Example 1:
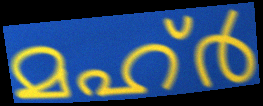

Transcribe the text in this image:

മഹ്ർ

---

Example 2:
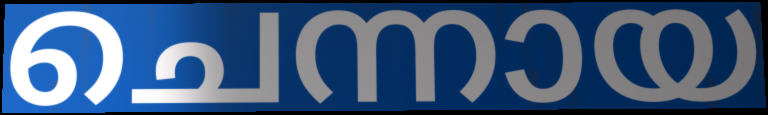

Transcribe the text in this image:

ചെന്നായ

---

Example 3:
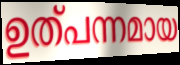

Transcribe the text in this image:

ഉത്പന്നമായ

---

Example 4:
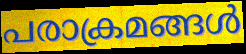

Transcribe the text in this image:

പരാക്രമങ്ങൾ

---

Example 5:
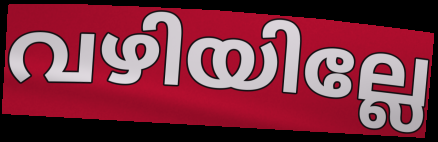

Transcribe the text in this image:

വഴിയില്ലേ